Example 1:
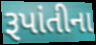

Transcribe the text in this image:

રૂપાંતીના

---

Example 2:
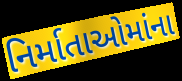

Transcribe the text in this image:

નિર્માતાઓમાંના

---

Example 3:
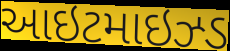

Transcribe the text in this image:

આઇટમાઇઝ્ડ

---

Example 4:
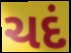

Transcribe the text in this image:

ચદં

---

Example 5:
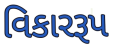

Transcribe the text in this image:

વિકારરૂપ